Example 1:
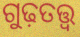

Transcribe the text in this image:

ଗୁଢ଼ତତ୍ତ୍ୱ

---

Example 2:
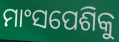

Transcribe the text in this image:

ମାଂସପେଶିକୁ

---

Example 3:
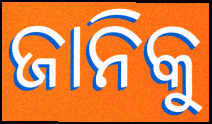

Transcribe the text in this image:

ଜାନିକୁ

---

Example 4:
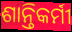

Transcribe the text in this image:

ଶାନ୍ତିକର୍ମୀ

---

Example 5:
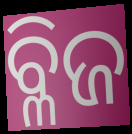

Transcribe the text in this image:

ବ୍ଳିଜ